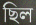
ছিল